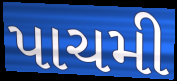
પાચમી